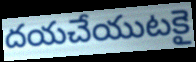
దయచేయుటకై